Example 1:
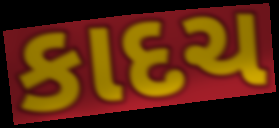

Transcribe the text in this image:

કાદચ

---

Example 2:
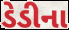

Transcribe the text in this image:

ડેડીના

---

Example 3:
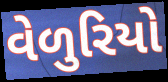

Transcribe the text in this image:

વેળુરિયો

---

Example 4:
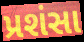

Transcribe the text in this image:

પ્રશંસા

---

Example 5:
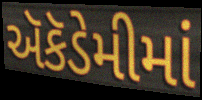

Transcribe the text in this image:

ઍકૅડેમીમાં